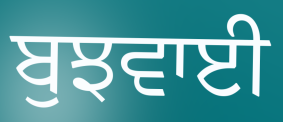
ਬੁਝਵਾਈ